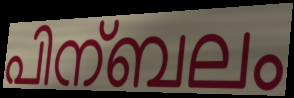
പിന്ബലം